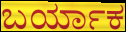
ಬರ್ಯಾಕ